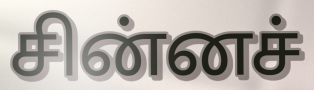
சின்னச்